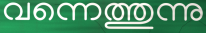
വന്നെത്തുന്നു